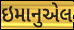
ઇમાનુએલ